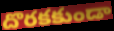
దొరకకుండా